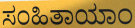
ಸಂಹಿತಾಯಾಂ